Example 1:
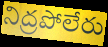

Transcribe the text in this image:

నిద్రపోలేరు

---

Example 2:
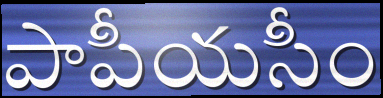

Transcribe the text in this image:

పాపీయసీం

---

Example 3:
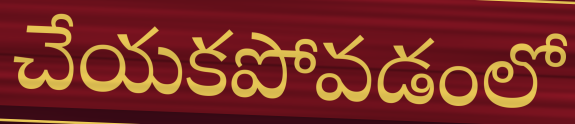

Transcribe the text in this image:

చేయకపోవడంలో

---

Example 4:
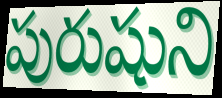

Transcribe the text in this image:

పురుషుని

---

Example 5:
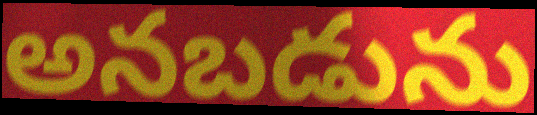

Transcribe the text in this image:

అనబడును